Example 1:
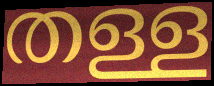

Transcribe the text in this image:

തള്ള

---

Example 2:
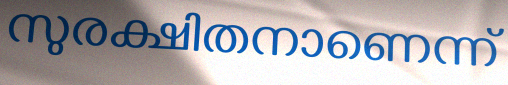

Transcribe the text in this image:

സുരക്ഷിതനാണെന്ന്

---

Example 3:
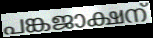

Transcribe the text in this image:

പങ്കജാക്ഷന്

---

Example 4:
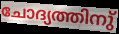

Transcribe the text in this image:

ചോദ്യത്തിനു്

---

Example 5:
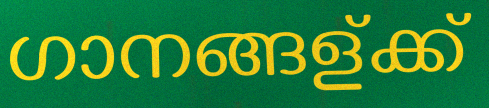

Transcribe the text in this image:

ഗാനങ്ങള്ക്ക്